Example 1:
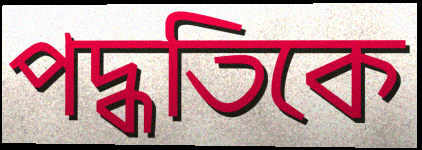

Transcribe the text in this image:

পদ্ধতিকে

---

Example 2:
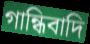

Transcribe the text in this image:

গান্ধিবাদি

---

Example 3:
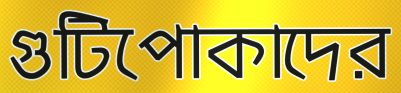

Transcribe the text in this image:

গুটিপোকাদের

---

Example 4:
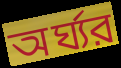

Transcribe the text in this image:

অর্ঘ্যর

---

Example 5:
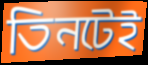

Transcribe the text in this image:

তিনটেই